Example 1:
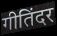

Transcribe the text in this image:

गीतिंदर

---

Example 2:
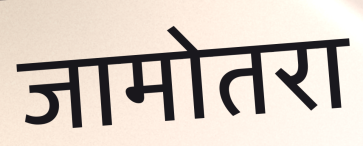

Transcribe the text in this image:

जामोतरा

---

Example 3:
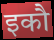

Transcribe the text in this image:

इकौ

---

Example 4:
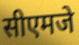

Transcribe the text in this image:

सीएमजे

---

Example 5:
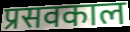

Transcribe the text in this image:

प्रसवकाल